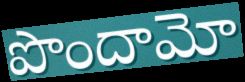
పొందామో